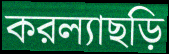
করল্যাছড়ি